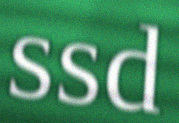
ssd